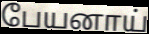
பேயனாய்